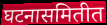
घटनासमितीत